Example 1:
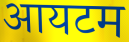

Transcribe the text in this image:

आयटम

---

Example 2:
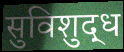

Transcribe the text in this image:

सुविशुद्ध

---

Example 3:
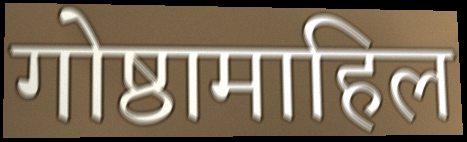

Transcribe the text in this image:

गोष्ठामाहिल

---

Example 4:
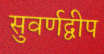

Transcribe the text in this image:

सुवर्णद्वीप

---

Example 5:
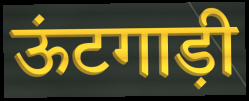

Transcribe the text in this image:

ऊंटगाड़ी